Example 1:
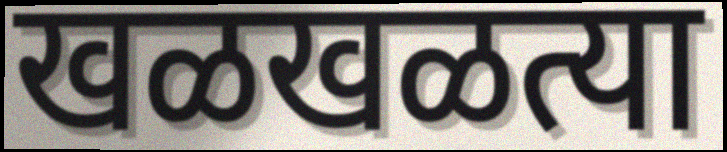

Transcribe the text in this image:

खळखळत्या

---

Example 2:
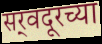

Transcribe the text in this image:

सर्वदूरच्या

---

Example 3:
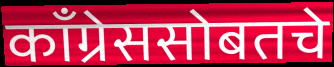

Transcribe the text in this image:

काँग्रेससोबतचे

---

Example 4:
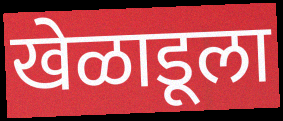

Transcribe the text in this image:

खेळाडूला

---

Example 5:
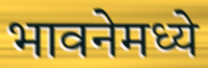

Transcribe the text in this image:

भावनेमध्ये